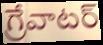
గ్రేవాటర్